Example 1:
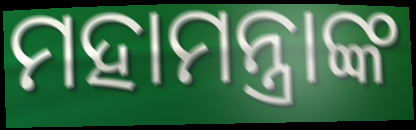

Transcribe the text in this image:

ମହାମନ୍ତ୍ରାଙ୍କ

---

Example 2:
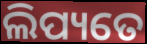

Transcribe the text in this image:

ଲିପ୍ୟତେ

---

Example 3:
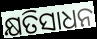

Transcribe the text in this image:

କ୍ଷତିସାଧନ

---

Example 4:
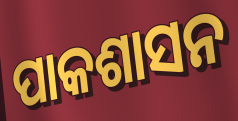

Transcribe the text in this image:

ପାକଶାସନ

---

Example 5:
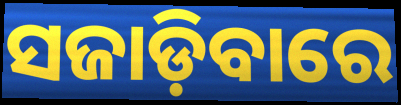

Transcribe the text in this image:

ସଜାଡ଼ିବାରେ